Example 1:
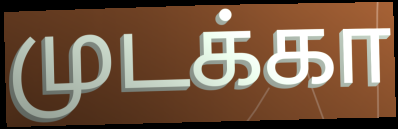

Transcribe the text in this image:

முடக்கா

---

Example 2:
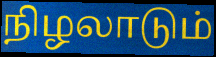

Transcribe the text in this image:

நிழலாடும்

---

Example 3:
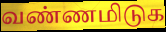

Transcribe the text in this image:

வண்ணமிடுக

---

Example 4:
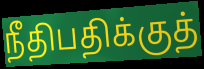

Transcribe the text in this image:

நீதிபதிக்குத்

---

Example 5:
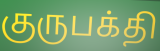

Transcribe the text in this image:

குருபக்தி